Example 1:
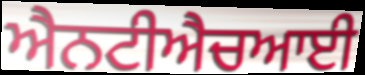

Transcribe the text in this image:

ਐਨਟੀਐਚਆਈ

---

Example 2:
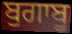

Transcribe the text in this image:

ਬੁਗਾਬੂ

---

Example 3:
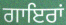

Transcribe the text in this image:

ਗਾਇਰਾਂ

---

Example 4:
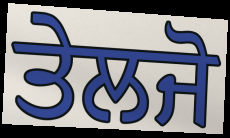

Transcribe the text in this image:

ਤੇਲਜੋ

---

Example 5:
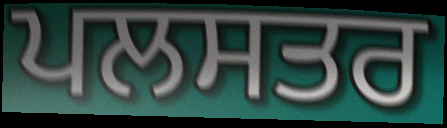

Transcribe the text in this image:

ਪਲਸਤਰ